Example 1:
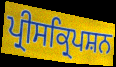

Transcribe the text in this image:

ਪ੍ਰੀਸਕ੍ਰਿਪਸ਼ਨ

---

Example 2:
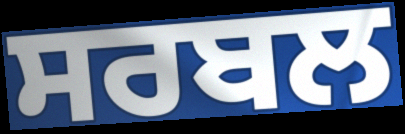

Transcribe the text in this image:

ਸਰਬਲ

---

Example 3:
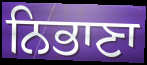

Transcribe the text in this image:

ਨਿਭਾਣਾ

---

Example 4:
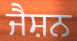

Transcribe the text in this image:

ਜੈਸ਼ਨ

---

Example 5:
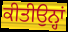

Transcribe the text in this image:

ਕੀਤੀਉਨ੍ਹਾਂ